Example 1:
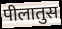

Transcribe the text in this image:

पीलातुस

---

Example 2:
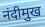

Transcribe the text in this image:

नंदीमुख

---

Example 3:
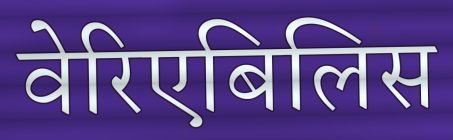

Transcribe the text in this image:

वेरिएबिलिस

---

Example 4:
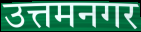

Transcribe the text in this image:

उत्तमनगर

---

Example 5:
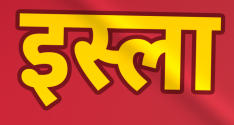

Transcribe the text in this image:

इस्ला